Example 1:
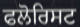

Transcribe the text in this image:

ਫਲੋਰਿਸਟ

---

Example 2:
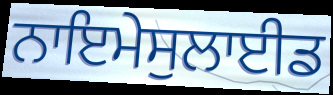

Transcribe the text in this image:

ਨਾਇਮੇਸੁਲਾਈਡ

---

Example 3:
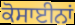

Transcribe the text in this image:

ਕੋਸਾਈਨਾਂ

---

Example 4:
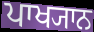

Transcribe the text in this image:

ਪਾਖ੍ਯਾਨ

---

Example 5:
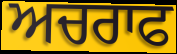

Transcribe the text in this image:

ਅਚਰਾਫ